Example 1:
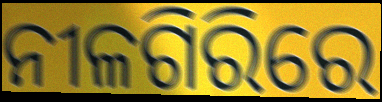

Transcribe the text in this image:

ନୀଳଗିରିରେ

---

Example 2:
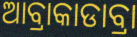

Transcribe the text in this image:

ଆବ୍ରାକାଡାବ୍ରା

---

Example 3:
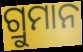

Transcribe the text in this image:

ଗ୍ରୁମାନ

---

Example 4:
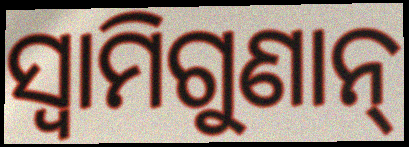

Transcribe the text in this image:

ସ୍ୱାମିଗୁଣାନ୍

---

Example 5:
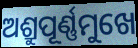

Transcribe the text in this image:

ଅଶ୍ରୁପୂର୍ଣ୍ଣମୁଖେ